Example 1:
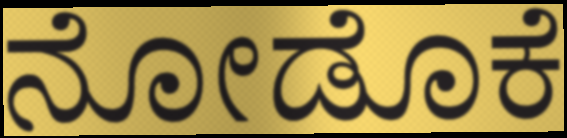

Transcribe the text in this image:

ನೋಡೊಕೆ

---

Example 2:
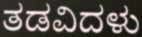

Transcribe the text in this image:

ತಡವಿದಳು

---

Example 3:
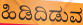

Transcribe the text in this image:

ಹಿಡಿದಿಡುವ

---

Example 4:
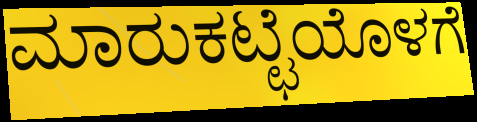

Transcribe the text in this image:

ಮಾರುಕಟ್ಟೆಯೊಳಗೆ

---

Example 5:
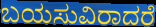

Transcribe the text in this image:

ಬಯಸುವಿರಾದರೆ